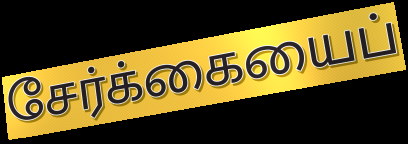
சேர்க்கையைப்